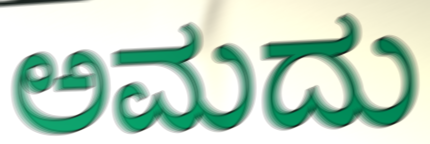
ಅಮದು